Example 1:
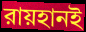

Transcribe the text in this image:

রায়হানই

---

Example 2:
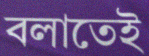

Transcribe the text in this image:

বলাতেই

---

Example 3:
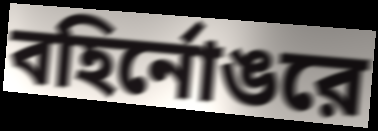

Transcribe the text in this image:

বহির্নোঙরে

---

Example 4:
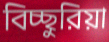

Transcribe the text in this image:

বিচ্ছুরিয়া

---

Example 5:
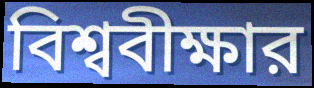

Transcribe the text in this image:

বিশ্ববীক্ষার